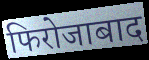
फिरोजाबाद